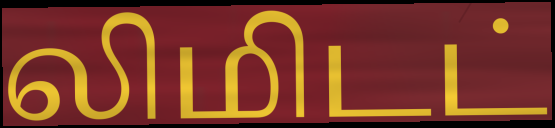
லிமிடட்